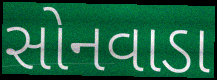
સોનવાડા